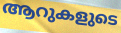
ആറുകളുടെ